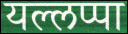
यल्लप्पा